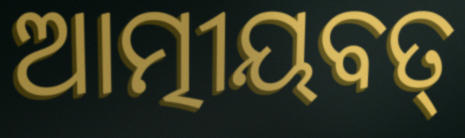
ଆତ୍ମୀୟବତ୍